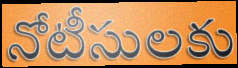
నోటీసులకు